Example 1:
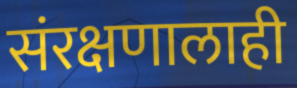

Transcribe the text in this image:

संरक्षणालाही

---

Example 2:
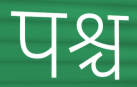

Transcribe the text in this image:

पश्च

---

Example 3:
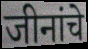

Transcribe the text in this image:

जीनांचे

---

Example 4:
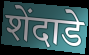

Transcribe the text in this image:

शेंदाडे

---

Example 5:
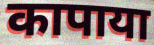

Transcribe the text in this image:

कापाया